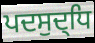
ਪਦਸੁਦ੍ਧਿ